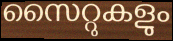
സൈറ്റുകളും